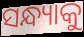
ସନ୍ଧ୍ୟାକୁ